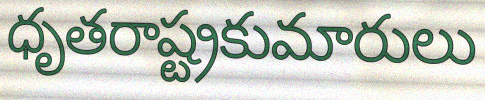
ధృతరాష్ట్రకుమారులు